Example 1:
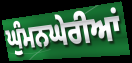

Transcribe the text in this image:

ਘੁੰਮਨਘੇਰੀਆਂ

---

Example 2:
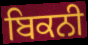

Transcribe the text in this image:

ਬਿਕਨੀ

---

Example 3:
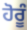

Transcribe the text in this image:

ਹੋਰੂੰ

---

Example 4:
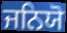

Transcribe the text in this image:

ਜਨਿਯੋ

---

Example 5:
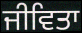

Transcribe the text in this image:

ਜੀਵਿਤਾ